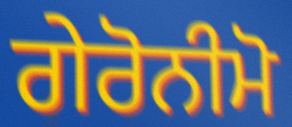
ਗੇਰੋਨੀਮੋ